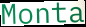
Monta